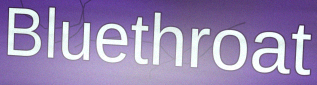
Bluethroat